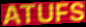
ATUFS